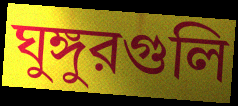
ঘুঙ্গুরগুলি